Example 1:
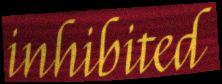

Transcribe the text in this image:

inhibited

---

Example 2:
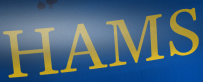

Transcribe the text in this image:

HAMS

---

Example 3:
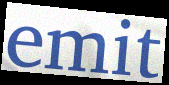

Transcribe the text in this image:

emit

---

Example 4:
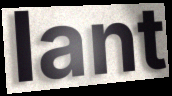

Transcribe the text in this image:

lant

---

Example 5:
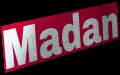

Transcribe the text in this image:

Madan